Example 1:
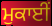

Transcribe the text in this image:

ਮੁਕਾਈਂ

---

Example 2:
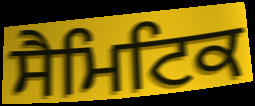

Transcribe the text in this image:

ਸੈਮਿਟਿਕ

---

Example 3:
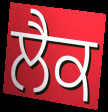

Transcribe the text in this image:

ਲੈਕ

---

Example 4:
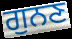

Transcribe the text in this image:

ਗੁਨਣ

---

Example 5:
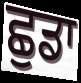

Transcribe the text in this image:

ਛੁਡਾ